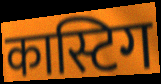
कास्टिग